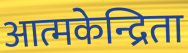
आत्मकेन्द्रिता